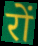
रों